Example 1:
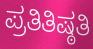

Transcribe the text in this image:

ಪ್ರತಿತಿಷ್ಠತಿ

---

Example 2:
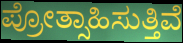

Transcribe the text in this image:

ಪ್ರೋತ್ಸಾಹಿಸುತ್ತಿವೆ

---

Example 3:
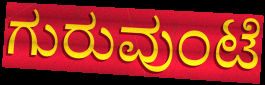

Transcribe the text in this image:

ಗುರುವುಂಟೆ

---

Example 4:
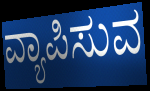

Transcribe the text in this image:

ವ್ಯಾಪಿಸುವ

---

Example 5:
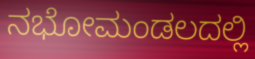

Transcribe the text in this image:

ನಭೋಮಂಡಲದಲ್ಲಿ